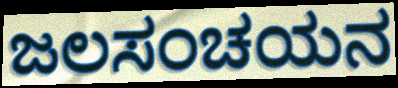
ಜಲಸಂಚಯನ